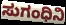
ಸುಗಂಧಿನಿ